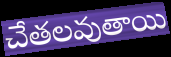
చేతలవుతాయి